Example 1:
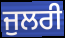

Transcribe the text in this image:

ਜੁਲਰੀ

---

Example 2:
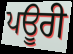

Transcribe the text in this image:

ਪਊਰੀ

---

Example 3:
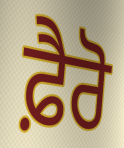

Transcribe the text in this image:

ਫ਼ੈਰੋ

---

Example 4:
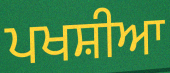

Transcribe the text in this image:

ਪਖਸ਼ੀਆ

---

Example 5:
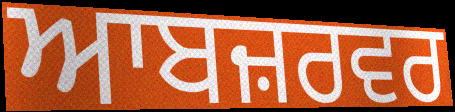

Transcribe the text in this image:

ਆਬਜ਼ਰਵਰ